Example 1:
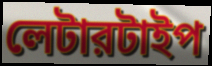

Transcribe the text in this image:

লেটারটাইপ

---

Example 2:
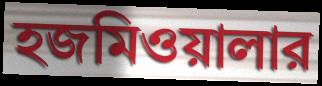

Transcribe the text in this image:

হজমিওয়ালার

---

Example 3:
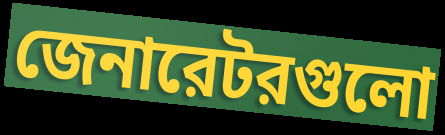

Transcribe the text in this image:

জেনারেটরগুলো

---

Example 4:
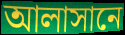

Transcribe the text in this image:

আলাসানে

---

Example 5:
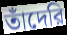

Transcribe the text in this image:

তাঁদেরি